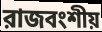
রাজবংশীয়